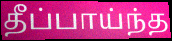
தீப்பாய்ந்த